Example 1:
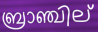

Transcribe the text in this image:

ബ്രാഞ്ചില്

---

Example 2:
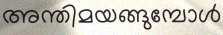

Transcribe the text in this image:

അന്തിമയങ്ങുമ്പോൾ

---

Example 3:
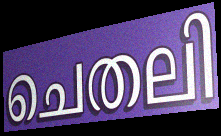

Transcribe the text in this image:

ചെതലി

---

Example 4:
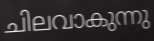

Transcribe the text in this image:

ചിലവാകുന്നു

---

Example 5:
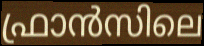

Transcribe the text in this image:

ഫ്രാൻസിലെ